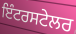
ਇੰਟਰਸਟੇਲਰ